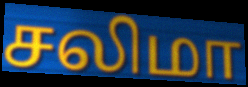
சலிமா